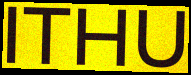
ITHU